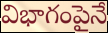
విభాగంపైనే